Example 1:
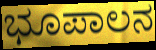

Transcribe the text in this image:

ಭೂಪಾಲನ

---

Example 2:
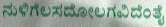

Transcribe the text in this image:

ನುಳಿಗೆಲಸದೋಲಗವಿದೆಂತೈ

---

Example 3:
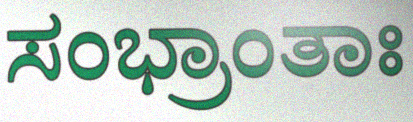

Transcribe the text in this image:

ಸಂಭ್ರಾಂತಾಃ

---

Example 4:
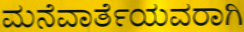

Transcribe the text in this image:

ಮನೆವಾರ್ತೆಯವರಾಗಿ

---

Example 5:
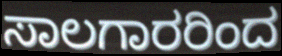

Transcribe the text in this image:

ಸಾಲಗಾರರಿಂದ